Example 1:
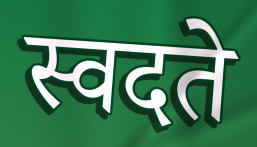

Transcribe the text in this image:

स्वदते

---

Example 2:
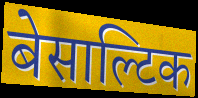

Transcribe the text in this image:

बेसाल्टिक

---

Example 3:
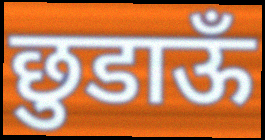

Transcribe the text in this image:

छुडाऊँ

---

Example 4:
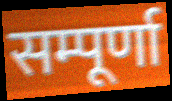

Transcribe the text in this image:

सम्पूर्णा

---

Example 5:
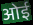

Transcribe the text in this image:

ओई